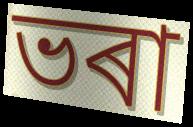
ভৰা